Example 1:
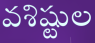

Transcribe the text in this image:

వశిష్టుల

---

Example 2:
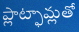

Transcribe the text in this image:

ప్లాట్ఫామ్లతో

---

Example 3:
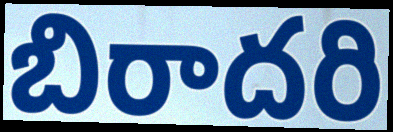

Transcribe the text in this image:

బిరాదరి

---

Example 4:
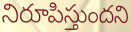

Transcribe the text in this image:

నిరూపిస్తుందని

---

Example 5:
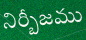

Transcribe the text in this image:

నిర్బీజము